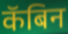
कॅबिन